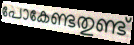
പോകേണ്ടതുണ്ട്